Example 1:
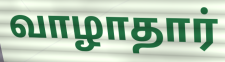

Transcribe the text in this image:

வாழாதார்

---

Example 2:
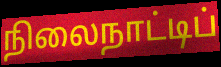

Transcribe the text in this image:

நிலைநாட்டிப்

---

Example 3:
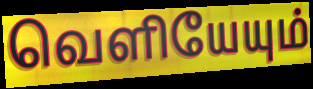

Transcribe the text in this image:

வெளியேயும்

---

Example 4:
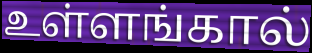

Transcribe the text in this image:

உள்ளங்கால்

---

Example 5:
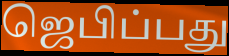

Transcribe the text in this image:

ஜெபிப்பது